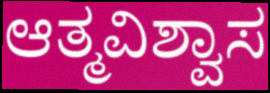
ಆತ್ಮವಿಶ್ವಾಸ